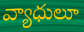
వ్యాధులూ